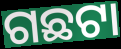
ଗଛଟା